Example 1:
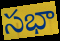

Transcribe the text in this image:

సభా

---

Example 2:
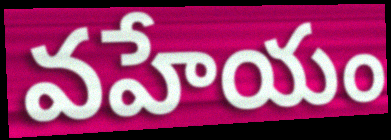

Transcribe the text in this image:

వహేయం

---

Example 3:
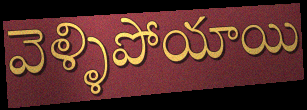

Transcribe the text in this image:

వెళ్ళిపోయాయి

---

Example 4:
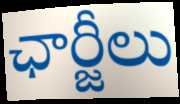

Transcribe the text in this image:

ఛార్జీలు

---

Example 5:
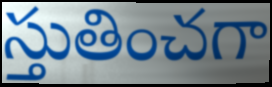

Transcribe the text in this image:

స్తుతించగా